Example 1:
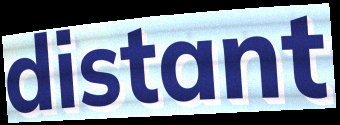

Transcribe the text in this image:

distant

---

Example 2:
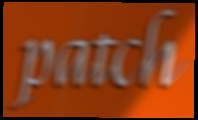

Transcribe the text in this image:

patch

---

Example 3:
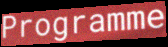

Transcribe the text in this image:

Programme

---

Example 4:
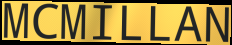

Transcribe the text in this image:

MCMILLAN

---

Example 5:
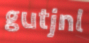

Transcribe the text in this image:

gutjnl